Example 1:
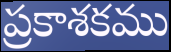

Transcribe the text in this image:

ప్రకాశకము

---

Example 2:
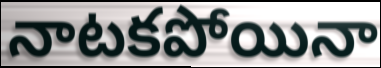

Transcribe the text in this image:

నాటకపోయినా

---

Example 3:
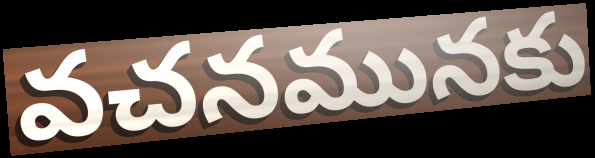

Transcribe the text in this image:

వచనమునకు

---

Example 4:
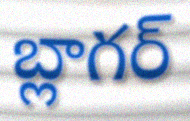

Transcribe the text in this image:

బ్లాగర్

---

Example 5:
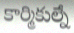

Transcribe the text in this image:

కార్మికుల్నే